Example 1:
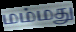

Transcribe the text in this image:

மம்மது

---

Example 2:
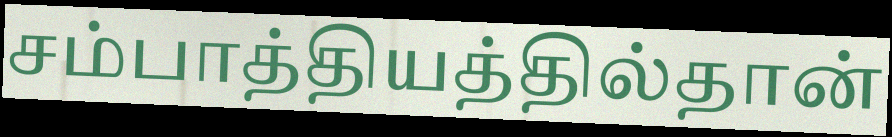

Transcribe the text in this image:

சம்பாத்தியத்தில்தான்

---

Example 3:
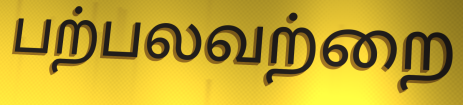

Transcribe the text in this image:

பற்பலவற்றை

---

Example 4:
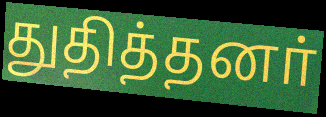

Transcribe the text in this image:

துதித்தனர்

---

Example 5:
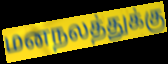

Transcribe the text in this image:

மனநலத்துக்கு